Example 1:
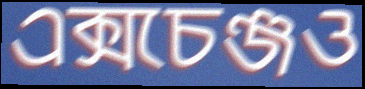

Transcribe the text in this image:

এক্সচেঞ্জও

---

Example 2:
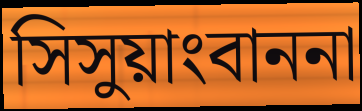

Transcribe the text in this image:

সিসুয়াংবাননা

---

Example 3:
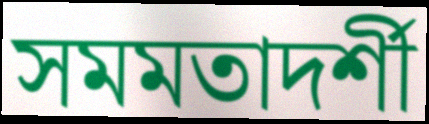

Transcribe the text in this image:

সমমতাদর্শী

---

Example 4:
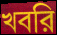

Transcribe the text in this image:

খবরি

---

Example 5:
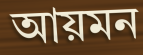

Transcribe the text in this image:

আয়মন